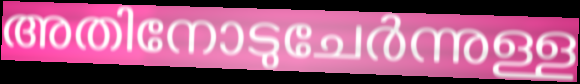
അതിനോടുചേർന്നുള്ള